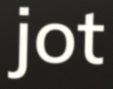
jot